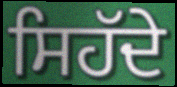
ਸਿਹੱਦੇ